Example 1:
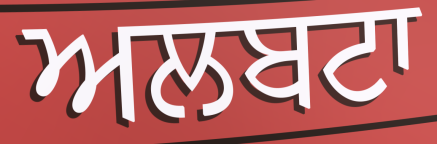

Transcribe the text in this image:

ਅਲਬਟਾ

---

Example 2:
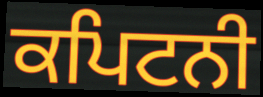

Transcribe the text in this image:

ਕਪਿਟਨੀ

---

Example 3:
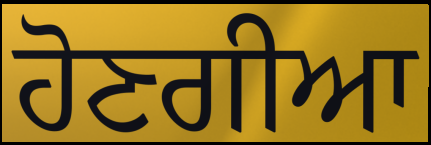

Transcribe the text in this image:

ਹੋਣਗੀਆ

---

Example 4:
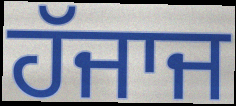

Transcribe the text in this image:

ਹੱਜਾਜ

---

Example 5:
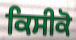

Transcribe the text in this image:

ਕਿਸੀਕੋ